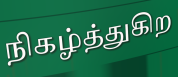
நிகழ்த்துகிற